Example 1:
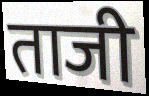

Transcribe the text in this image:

ताजी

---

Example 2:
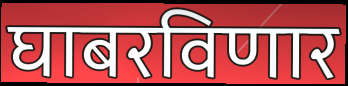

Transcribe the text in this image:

घाबरविणार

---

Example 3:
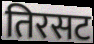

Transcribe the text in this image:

तिरसट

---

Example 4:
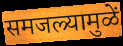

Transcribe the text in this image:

समजल्यामुळें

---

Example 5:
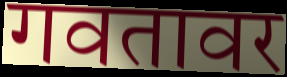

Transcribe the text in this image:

गवतावर